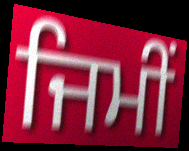
ਜਿਮੀਂ